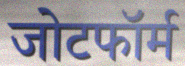
जोटफॉर्म